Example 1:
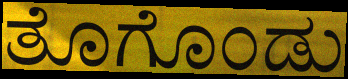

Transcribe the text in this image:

ತೊಗೊಂಡು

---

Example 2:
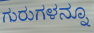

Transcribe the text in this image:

ಗುರುಗಳನ್ನೂ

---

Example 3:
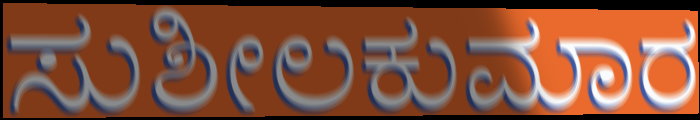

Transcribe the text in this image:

ಸುಶೀಲಕುಮಾರ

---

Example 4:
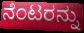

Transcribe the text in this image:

ನೆಂಟರನ್ನು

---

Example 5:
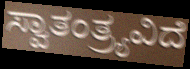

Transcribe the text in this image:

ಸ್ವಾತಂತ್ರ್ಯವಿದೆ